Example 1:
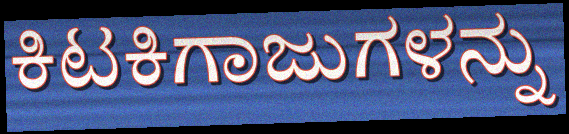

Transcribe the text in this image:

ಕಿಟಕಿಗಾಜುಗಳನ್ನು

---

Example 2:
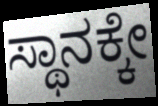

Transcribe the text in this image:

ಸ್ಥಾನಕ್ಕೇ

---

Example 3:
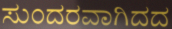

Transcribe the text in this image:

ಸುಂದರವಾಗಿದದ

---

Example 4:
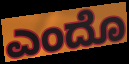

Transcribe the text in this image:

ಎಂದೊ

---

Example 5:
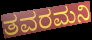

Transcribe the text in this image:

ತವರಮನಿ